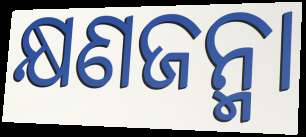
କ୍ଷଣଜନ୍ମା